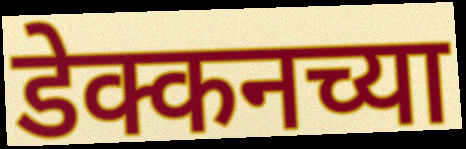
डेक्कनच्या